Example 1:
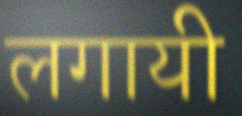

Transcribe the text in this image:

लगायी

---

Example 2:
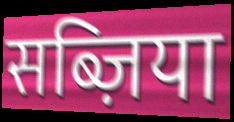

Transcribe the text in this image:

सब्ज़िया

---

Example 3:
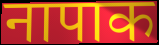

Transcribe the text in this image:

नापाक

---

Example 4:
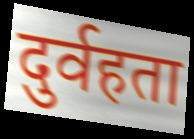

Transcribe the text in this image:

दुर्वहता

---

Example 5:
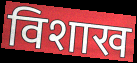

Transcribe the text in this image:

विशाख